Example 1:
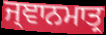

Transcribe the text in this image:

ਜ੍ਞਾਨਮਾਤ੍ਰ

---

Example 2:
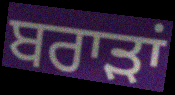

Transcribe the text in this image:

ਬਰਾੜਾਂ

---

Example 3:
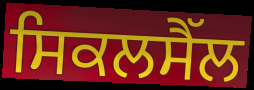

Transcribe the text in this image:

ਸਿਕਲਸੈੱਲ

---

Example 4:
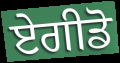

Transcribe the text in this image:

ਏਗੀਡੋ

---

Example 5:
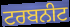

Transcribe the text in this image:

ਟਰਬਨੀਟ